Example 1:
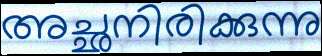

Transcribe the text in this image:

അച്ഛനിരിക്കുന്നു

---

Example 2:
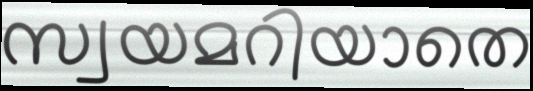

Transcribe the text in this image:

സ്വയമറിയാതെ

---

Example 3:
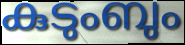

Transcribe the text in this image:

കുടുംബും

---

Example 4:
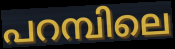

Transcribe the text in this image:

പറമ്പിലെ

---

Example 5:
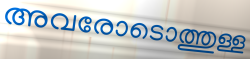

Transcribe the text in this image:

അവരോടൊത്തുള്ള